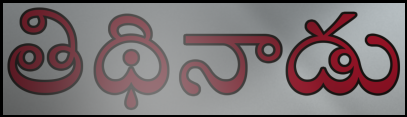
తిథినాడు